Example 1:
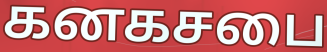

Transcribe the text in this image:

கனகசபை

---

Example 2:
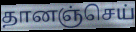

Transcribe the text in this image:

தானஞ்செய்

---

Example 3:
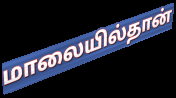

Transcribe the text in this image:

மாலையில்தான்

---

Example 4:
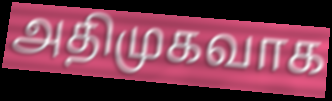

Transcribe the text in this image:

அதிமுகவாக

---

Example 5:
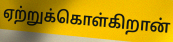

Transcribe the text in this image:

ஏற்றுக்கொள்கிறான்